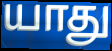
யாது